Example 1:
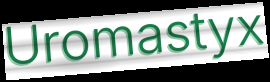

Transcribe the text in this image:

Uromastyx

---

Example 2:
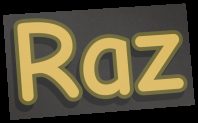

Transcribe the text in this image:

Raz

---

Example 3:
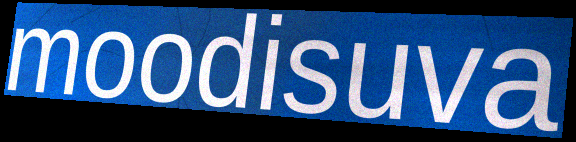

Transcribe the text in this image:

moodisuva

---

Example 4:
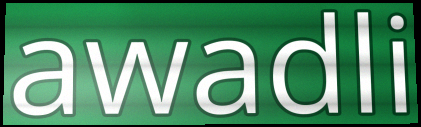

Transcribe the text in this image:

awadli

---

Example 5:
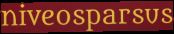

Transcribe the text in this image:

niveosparsus